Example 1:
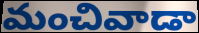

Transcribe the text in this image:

మంచివాడా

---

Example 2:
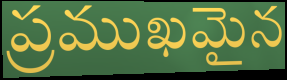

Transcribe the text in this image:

ప్రముఖమైన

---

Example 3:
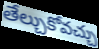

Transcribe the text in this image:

తేల్చుకోవచ్చు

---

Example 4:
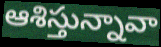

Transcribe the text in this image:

ఆశిస్తున్నావా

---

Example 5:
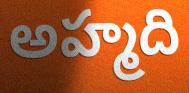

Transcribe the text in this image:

అహ్మది